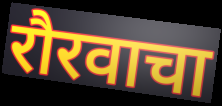
रौरवाचा